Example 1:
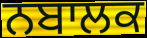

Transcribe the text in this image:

ਨਬਾਲਕ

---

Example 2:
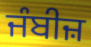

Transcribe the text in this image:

ਜੰਬੀਜ਼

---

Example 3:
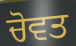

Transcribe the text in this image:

ਚੋਵਤ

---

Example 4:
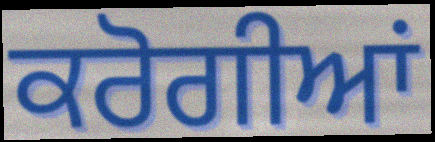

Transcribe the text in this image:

ਕਰੋਗੀਆਂ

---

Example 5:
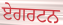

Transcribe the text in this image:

ਏਗਰਟਨ